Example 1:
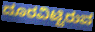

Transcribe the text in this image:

ದೂರವಿಟ್ಟಿರುವ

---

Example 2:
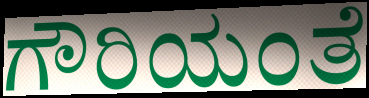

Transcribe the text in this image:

ಗೌರಿಯಂತೆ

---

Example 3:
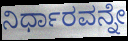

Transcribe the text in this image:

ನಿರ್ಧಾರವನ್ನೇ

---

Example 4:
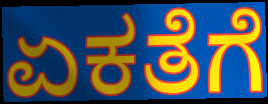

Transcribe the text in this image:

ಏಕತೆಗೆ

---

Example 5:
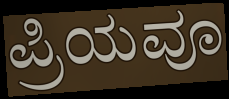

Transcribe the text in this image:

ಪ್ರಿಯವೂ